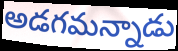
అడగమన్నాడు